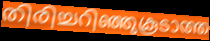
തിരിച്ചറിഞ്ഞുകൂടാത്ത